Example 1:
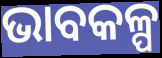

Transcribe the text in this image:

ଭାବକଳ୍ପ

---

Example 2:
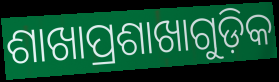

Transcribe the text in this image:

ଶାଖାପ୍ରଶାଖାଗୁଡ଼ିକ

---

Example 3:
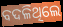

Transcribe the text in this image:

ବଦଳିଥିଲେ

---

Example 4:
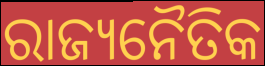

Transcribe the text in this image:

ରାଜ୍ୟନୈତିକ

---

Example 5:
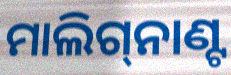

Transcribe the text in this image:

ମାଲିଗ୍‌ନାଣ୍ଟ